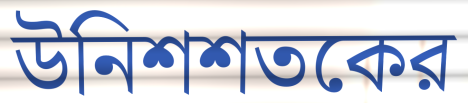
উনিশশতকের